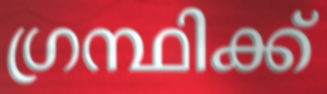
ഗ്രന്ഥിക്ക്